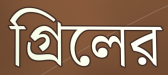
গ্রিলের